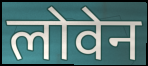
लोवेन